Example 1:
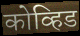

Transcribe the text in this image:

कोव्हिड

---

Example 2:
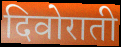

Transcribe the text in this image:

दिवोराती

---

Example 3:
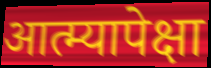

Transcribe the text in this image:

आत्म्यापेक्षा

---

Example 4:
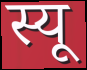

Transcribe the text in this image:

स्यू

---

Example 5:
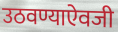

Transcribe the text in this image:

उठवण्याऐवजी